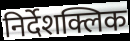
निर्देशक्लिक